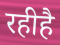
रहीहै